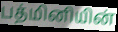
பத்மினியின்